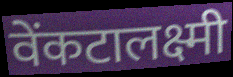
वेंकटालक्ष्मी